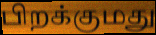
பிறக்குமது